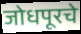
जोधपूरचे